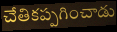
చేతికప్పగించాడు